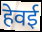
हेवई